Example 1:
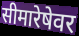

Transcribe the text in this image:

सीमारेषेवर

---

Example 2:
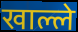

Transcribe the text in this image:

खाल्ले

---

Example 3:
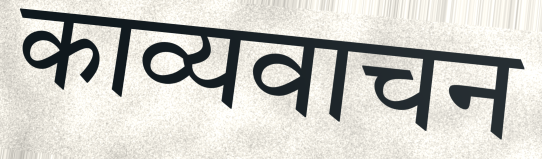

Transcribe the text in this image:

काव्यवाचन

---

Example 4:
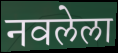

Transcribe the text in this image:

नवलेला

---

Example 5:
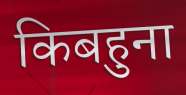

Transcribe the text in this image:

किबहुना